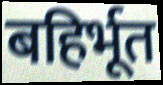
बहिर्भूत